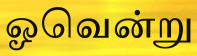
ஓவென்று